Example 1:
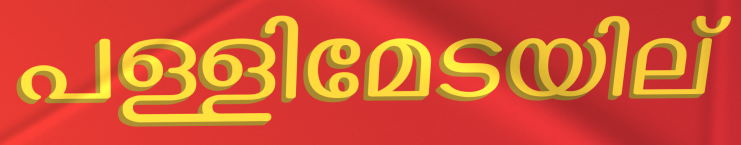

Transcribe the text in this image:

പള്ളിമേടയില്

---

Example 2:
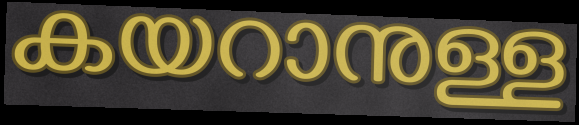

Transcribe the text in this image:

കയറാനുള്ള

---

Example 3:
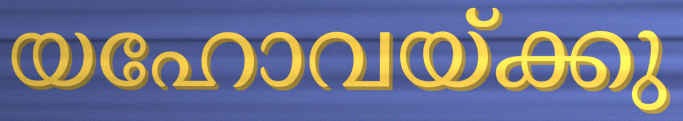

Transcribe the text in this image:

യഹോവയ്ക്കു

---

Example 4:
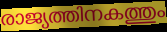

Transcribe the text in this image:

രാജ്യത്തിനകത്തും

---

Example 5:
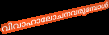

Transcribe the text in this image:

വിവാഹാലോചനവരുമ്പോൾ